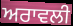
ਅਰਾਵਲੀ